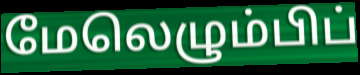
மேலெழும்பிப்